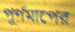
পূর্ণমাপের